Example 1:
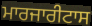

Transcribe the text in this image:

ਮਾਰਜਾਰੀਟਾਸ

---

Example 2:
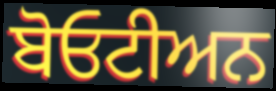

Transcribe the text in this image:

ਬੋਓਟੀਅਨ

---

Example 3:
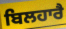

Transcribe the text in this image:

ਬਿਲਹਾਰੈ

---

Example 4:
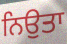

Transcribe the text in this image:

ਨਿਉਤਾ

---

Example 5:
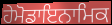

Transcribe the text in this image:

ਹੇਮੋਡਾਇਨਾਮਿਕ